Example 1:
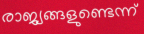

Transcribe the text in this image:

രാജ്യങ്ങളുണ്ടെന്ന്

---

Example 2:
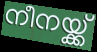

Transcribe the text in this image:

നീനയ്ക്ക്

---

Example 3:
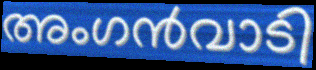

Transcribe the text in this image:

അംഗൻവാടി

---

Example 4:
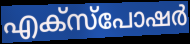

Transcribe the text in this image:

എക്സ്പോഷർ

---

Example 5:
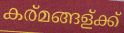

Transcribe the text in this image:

കര്മങ്ങള്ക്ക്